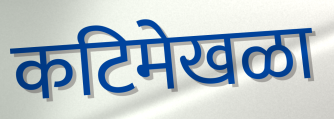
कटिमेखळा